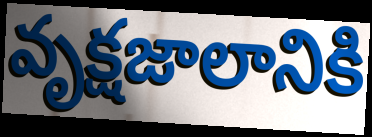
వృక్షజాలానికి